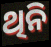
ଥିନି